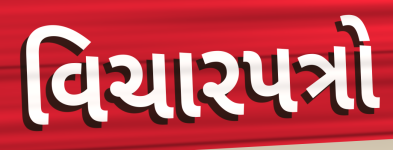
વિચારપત્રો